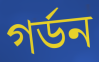
গৰ্ডন